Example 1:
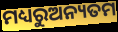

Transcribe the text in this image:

ମଧ୍ୟରୁଅନ୍ୟତମ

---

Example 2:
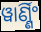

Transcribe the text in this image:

ୱାର୍ଣ୍ଣିଂ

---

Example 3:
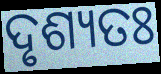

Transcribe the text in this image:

ଦୃଶ୍ୟତଃ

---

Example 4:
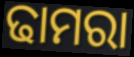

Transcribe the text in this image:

ଢାମରା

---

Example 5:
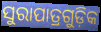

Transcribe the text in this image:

ସୁରାପାତ୍ରଗୁଡ଼ିକ